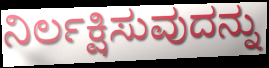
ನಿರ್ಲಕ್ಷಿಸುವುದನ್ನು